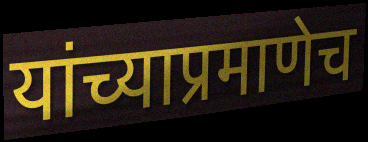
यांच्याप्रमाणेच